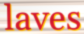
laves